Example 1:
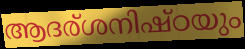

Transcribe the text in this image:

ആദര്ശനിഷ്ഠയും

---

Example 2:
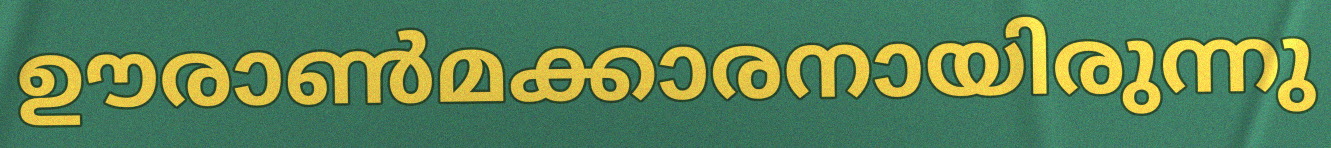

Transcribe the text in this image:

ഊരാൺമക്കാരനായിരുന്നു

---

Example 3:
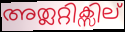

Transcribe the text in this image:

അത്ലറ്റിക്സില്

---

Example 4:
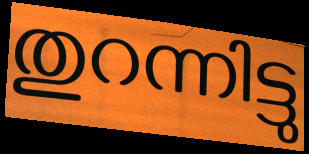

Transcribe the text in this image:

തുറന്നിട്ടു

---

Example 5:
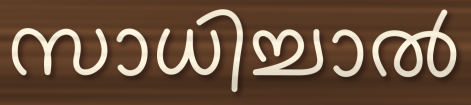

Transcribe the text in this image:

സാധിച്ചാൽ